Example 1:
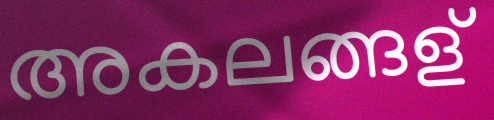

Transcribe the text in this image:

അകലങ്ങള്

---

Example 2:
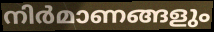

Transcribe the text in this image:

നിർമാണങ്ങളും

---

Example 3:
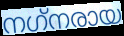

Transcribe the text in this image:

നഗ്‌നരായ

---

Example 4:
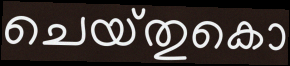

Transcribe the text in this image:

ചെയ്‌തുകൊ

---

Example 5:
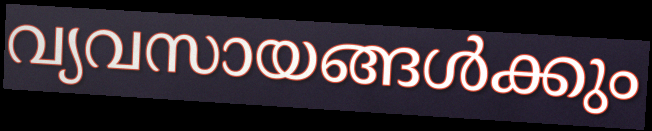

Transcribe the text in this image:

വ്യവസായങ്ങൾക്കും